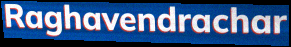
Raghavendrachar